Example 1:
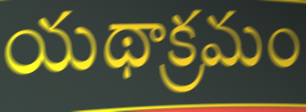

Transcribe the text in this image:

యథాక్రమం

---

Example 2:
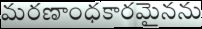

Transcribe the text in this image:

మరణాంధకారమైనను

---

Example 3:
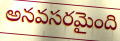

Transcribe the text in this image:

అనవసరమైంది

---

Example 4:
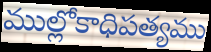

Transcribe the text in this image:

ముల్లోకాధిపత్యము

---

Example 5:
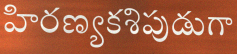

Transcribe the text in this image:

హిరణ్యకశిపుడుగా